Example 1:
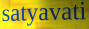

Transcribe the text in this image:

satyavati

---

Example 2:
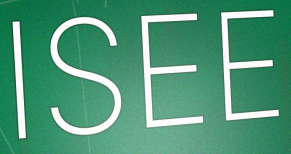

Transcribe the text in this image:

ISEE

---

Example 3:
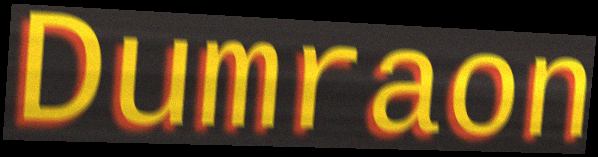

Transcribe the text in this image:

Dumraon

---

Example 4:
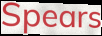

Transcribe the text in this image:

Spears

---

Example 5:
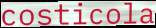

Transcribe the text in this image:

costicola